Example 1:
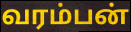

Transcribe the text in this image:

வரம்பன்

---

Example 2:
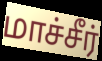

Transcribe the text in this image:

மாச்சீர்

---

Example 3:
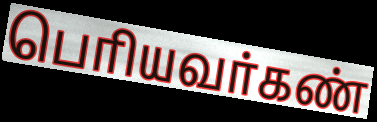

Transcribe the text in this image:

பெரியவர்கண்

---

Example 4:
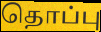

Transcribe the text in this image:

தொப்பு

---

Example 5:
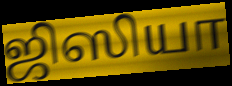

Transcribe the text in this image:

ஜிஸியா